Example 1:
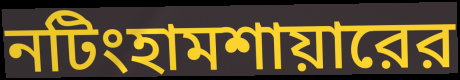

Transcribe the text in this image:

নটিংহামশায়ারের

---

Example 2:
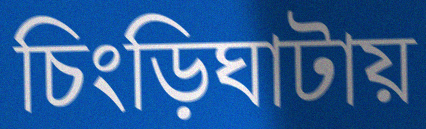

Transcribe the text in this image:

চিংড়িঘাটায়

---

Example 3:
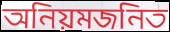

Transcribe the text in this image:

অনিয়মজনিত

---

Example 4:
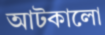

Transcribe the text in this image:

আটকালো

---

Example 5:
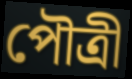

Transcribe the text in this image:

পৌত্রী